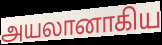
அயலானாகிய